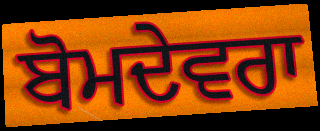
ਬੋਮਦੇਵਰਾ